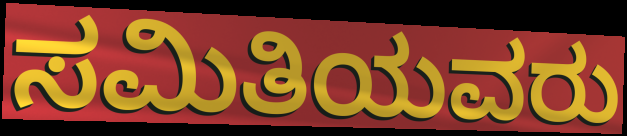
ಸಮಿತಿಯವರು